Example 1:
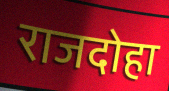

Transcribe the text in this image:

राजदोहा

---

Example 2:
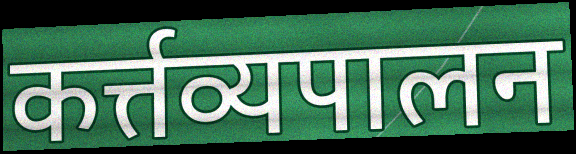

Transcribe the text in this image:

कर्त्तव्यपालन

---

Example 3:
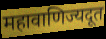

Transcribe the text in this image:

महावाणिज्यदूत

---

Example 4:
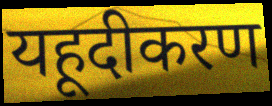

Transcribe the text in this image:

यहूदीकरण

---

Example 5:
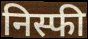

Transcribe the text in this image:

निस्फी